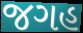
જગહ